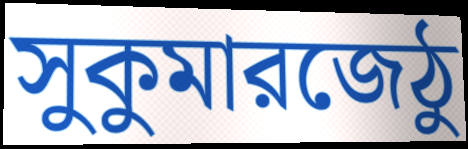
সুকুমারজেঠু